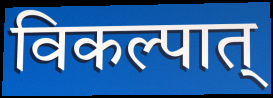
विकल्पात्